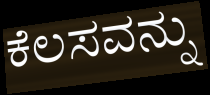
ಕೆಲಸವನ್ನು